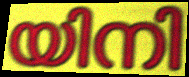
യിനി